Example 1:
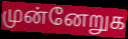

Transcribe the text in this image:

முன்னேறுக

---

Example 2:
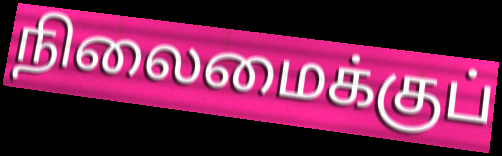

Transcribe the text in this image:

நிலைமைக்குப்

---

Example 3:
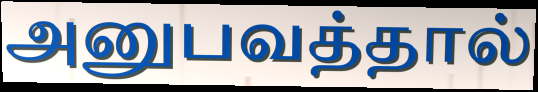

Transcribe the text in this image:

அனுபவத்தால்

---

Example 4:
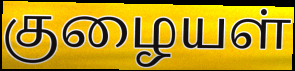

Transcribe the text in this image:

குழையள்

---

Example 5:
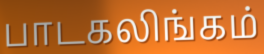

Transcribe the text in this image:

பாடகலிங்கம்